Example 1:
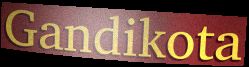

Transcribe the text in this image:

Gandikota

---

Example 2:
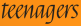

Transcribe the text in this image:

teenagers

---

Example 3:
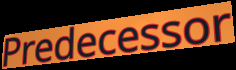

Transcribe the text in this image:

Predecessor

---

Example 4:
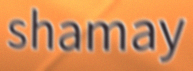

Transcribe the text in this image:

shamay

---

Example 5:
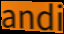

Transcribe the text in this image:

andi